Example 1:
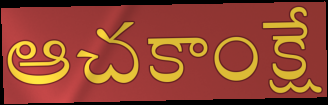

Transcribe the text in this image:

ఆచకాంక్షే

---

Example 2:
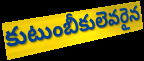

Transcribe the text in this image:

కుటుంబీకులెవరైన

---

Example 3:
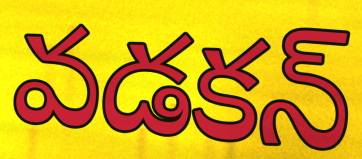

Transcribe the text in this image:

వడకన్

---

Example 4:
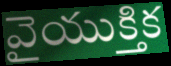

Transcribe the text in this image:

వైయుక్తిక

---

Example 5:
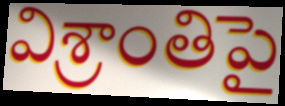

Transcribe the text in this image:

విశ్రాంతిపై